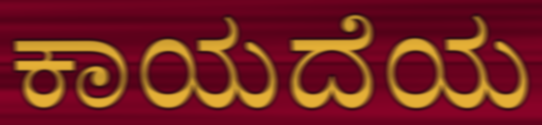
ಕಾಯದೆಯ